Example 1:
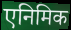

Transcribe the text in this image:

एनिमिक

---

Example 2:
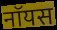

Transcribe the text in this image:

नॉयस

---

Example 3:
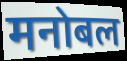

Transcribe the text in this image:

मनोबल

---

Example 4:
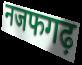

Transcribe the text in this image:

नजफगढ़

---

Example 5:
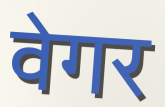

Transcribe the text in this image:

वेगर